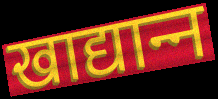
खाद्यान्‍न